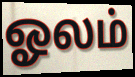
ஓலம்